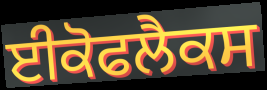
ਈਕੋਫਲੈਕਸ